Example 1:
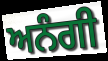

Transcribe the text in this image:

ਅਨੰਗੀ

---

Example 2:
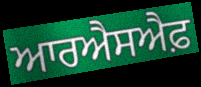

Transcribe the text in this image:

ਆਰਐਸਐਫ਼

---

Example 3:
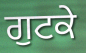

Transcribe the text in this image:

ਗੁਟਕੇ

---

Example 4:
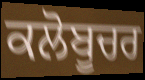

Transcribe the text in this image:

ਕਲੋਬੂਚਰ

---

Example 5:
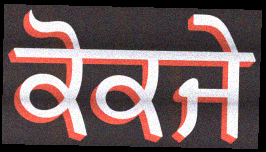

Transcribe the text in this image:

ਕੋਕਜੇ